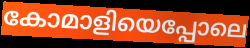
കോമാളിയെപ്പോലെ